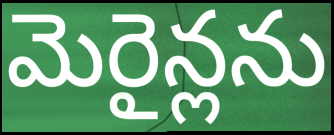
మెరైన్లను